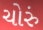
ચોરું